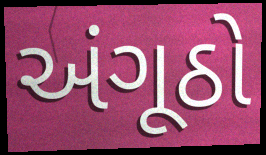
અંગૂઠો